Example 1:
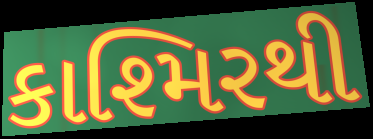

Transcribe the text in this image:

કાશ્મિરથી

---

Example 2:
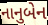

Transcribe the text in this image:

નાનુબેન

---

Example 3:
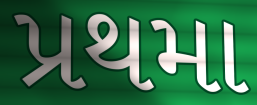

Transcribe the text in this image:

પ્રથમા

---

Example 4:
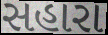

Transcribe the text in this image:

સહારા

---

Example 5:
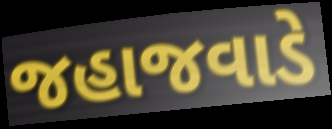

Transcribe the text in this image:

જહાજવાડે